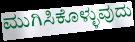
ಮುಗಿಸಿಕೊಳ್ಳುವುದು